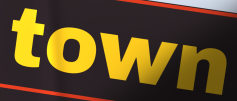
town